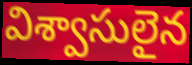
విశ్వాసులైన